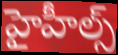
హైహీల్స్